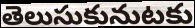
తెలుసుకునుటకు